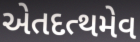
એતદત્થમેવ